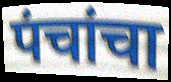
पंचांचा